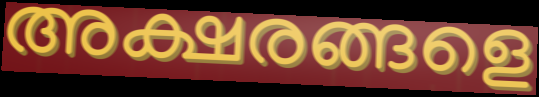
അക്ഷരങ്ങളെ